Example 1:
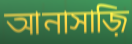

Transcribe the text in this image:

আনাসাজ়ি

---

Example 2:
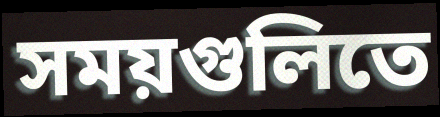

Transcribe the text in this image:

সময়গুলিতে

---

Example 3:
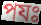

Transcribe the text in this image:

পযঃ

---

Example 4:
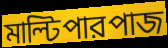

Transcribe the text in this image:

মাল্টিপারপাজ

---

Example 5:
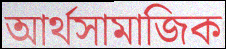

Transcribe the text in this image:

আর্থসামাজিক